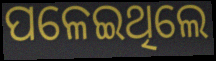
ପଳେଇଥିଲେ